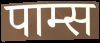
पाम्स